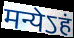
मन्येऽहं